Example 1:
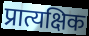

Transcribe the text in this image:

प्रात्यक्षिक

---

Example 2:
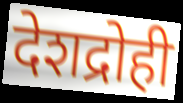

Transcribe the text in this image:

देशद्रोही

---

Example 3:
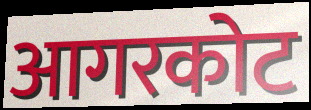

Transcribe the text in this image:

आगरकोट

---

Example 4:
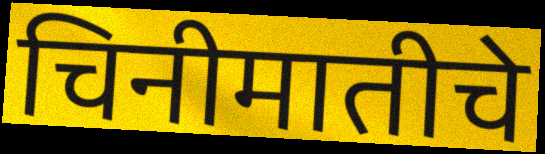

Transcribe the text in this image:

चिनीमातीचे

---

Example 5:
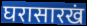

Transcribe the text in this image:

घरासारखं